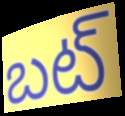
బట్